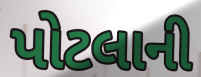
પોટલાની